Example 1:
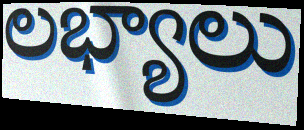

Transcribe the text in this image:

లభ్యాలు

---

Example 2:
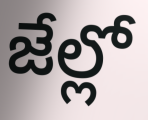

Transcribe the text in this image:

జేల్లో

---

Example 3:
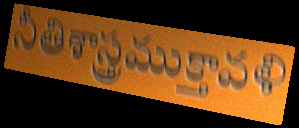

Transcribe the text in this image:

నీతిశాస్త్రముక్తావళి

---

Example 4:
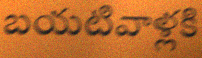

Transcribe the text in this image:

బయటివాళ్లకి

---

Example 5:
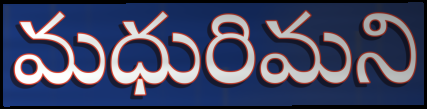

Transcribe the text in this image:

మధురిమని